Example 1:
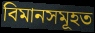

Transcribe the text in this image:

বিমানসমূহত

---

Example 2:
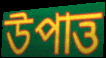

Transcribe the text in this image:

উপাত্ত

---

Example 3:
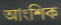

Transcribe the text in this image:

আংশিক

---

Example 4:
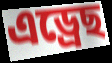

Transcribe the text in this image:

এড্ৰেছ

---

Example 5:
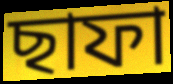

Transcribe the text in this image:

ছাফা